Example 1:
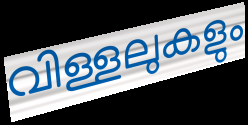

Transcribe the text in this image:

വിള്ളലുകളും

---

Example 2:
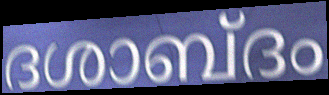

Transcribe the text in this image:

ദശാബ്ദം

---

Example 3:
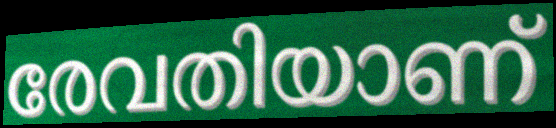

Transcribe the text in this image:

രേവതിയാണ്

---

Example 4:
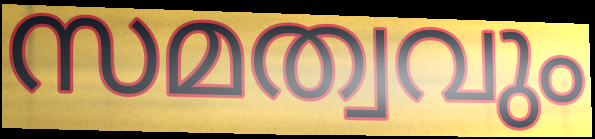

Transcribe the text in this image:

സമത്വവും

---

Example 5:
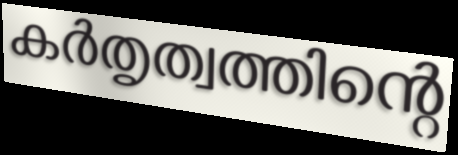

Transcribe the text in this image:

കർതൃത്വത്തിന്റെ